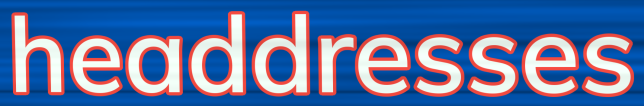
headdresses